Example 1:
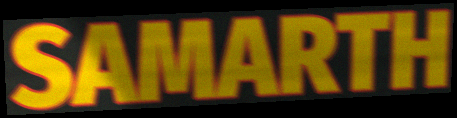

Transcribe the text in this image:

SAMARTH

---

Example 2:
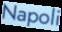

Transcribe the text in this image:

Napoli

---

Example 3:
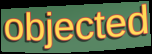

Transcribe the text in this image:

objected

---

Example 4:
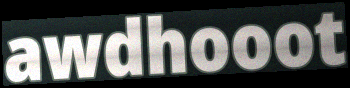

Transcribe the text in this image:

awdhooot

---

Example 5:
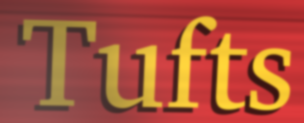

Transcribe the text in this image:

Tufts